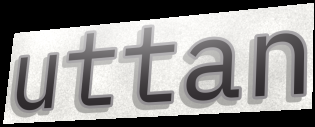
uttan